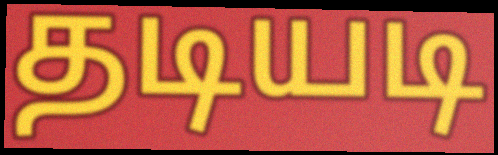
தடியடி